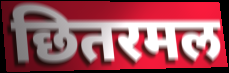
छितरमल